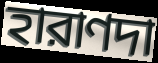
হারাণদা